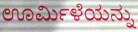
ಊರ್ಮಿಳೆಯನ್ನು